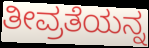
ತೀವ್ರತೆಯನ್ನ